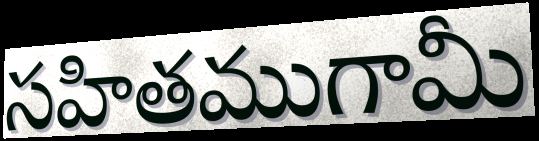
సహితముగామీ